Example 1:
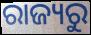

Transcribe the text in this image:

ରାଜ୍ୟରୁ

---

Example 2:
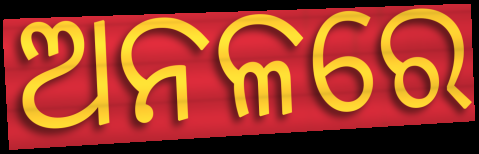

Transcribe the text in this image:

ଅନଳରେ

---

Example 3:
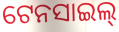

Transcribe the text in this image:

ଟେନସାଇଲ୍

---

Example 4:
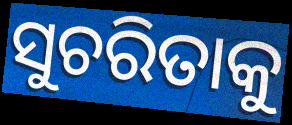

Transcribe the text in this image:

ସୁଚରିତାକୁ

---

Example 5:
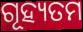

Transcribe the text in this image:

ଗୂହ୍ୟତମ